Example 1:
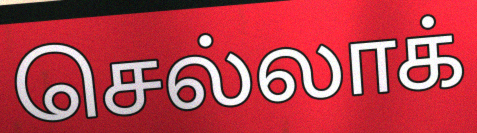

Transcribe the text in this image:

செல்லாக்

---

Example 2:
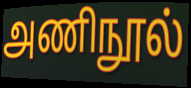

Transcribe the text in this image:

அணிநூல்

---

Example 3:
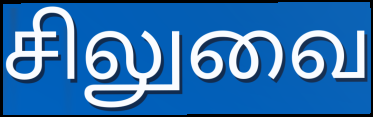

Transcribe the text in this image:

சிலுவை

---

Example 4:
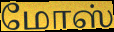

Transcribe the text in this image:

மோஸ்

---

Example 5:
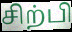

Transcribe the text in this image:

சிற்பி